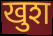
खुश